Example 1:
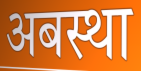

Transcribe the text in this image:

अबस्था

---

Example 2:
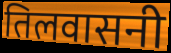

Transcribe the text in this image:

तिलवासनी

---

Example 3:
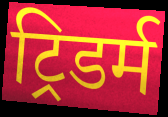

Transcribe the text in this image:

ट्रिडर्म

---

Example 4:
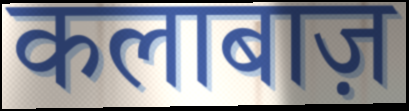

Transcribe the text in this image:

कलाबाज़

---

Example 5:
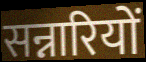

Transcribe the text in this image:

सन्नारियों